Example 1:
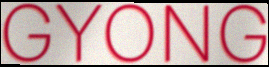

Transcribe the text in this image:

GYONG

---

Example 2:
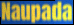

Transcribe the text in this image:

Naupada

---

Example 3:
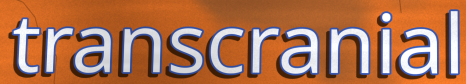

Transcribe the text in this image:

transcranial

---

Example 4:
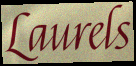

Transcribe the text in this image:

Laurels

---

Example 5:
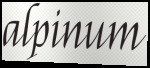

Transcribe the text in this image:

alpinum